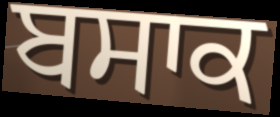
ਬਸਾਕ